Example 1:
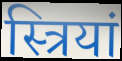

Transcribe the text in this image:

स्त्रियां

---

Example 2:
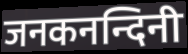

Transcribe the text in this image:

जनकनन्दिनी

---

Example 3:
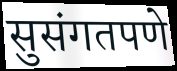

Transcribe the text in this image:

सुसंगतपणे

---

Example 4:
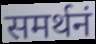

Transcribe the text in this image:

समर्थनं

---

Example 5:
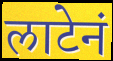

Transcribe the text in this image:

लाटेनं